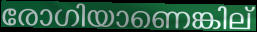
രോഗിയാണെങ്കില്